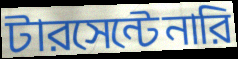
টারসেন্টেনারি